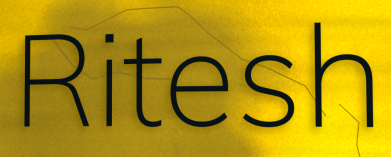
Ritesh